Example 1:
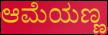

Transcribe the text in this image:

ಆಮೆಯಣ್ಣ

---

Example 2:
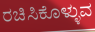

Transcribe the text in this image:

ರಚಿಸಿಕೊಳ್ಳುವ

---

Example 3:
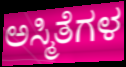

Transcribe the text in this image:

ಅಸ್ಮಿತೆಗಳ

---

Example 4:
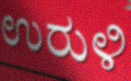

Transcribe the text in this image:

ಉರುಳಿ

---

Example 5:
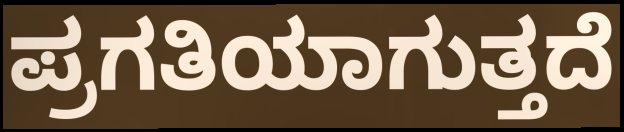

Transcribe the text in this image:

ಪ್ರಗತಿಯಾಗುತ್ತದೆ